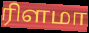
ரிளமா